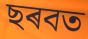
ছৰবত